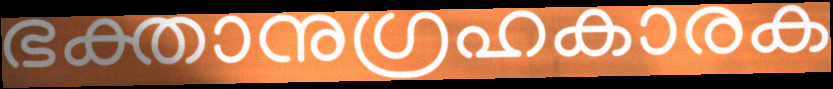
ഭക്താനുഗ്രഹകാരക